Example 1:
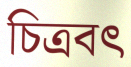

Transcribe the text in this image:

চিত্রবৎ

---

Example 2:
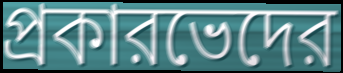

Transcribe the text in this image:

প্রকারভেদের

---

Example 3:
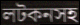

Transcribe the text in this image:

লটকনসহ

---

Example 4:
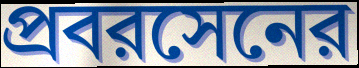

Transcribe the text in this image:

প্রবরসেনের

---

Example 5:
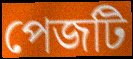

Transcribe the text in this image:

পেজটি